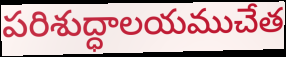
పరిశుద్ధాలయముచేత